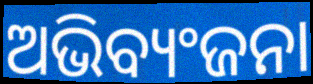
ଅଭିବ୍ୟଂଜନା